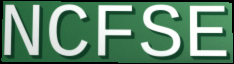
NCFSE